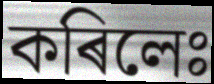
কৰিলেঃ